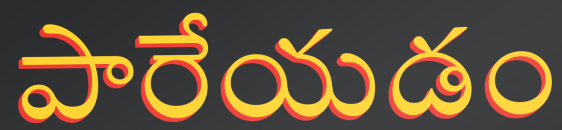
పారేయడం